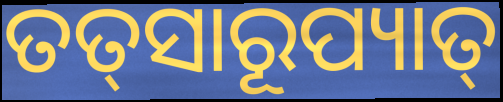
ତତ୍‌ସାରୂପ୍ୟାତ୍